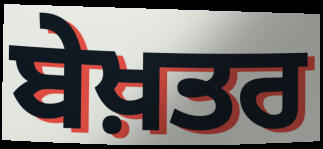
ਬੇਖ਼ਤਰ